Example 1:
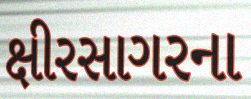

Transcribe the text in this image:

ક્ષીરસાગરના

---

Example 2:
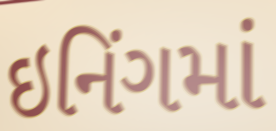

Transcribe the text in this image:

ઇનિંગમાં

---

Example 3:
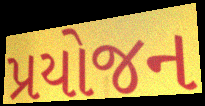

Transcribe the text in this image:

પ્રયોજન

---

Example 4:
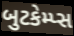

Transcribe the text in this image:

બુટકેમ્પ્સ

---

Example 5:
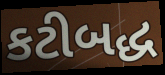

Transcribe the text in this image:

કટીબદ્ધ